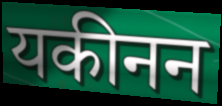
यकीनन